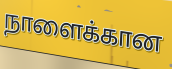
நாளைக்கான